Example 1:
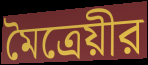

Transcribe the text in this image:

মৈত্রেয়ীর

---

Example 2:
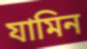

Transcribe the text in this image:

যামিন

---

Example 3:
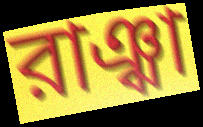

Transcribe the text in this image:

রাঞ্ঝা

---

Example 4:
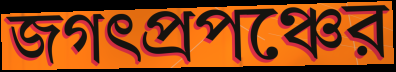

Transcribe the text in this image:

জগৎপ্রপঞ্চের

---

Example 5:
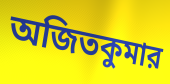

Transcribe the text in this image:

অজিতকুমার